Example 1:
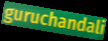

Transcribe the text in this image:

guruchandali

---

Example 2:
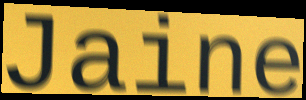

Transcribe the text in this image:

Jaine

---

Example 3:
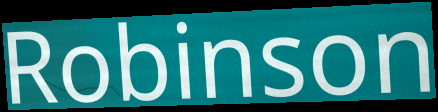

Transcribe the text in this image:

Robinson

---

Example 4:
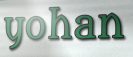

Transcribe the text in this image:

yohan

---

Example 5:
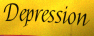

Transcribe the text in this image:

Depression